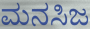
ಮನಸಿಜ